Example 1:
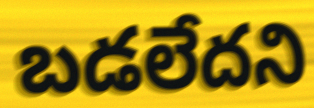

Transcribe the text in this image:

బడలేదని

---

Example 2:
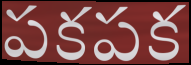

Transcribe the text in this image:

పకపక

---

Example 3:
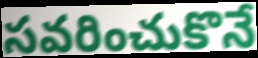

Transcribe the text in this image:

సవరించుకొనే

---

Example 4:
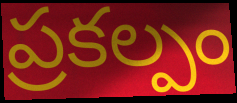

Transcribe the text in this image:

ప్రకల్పం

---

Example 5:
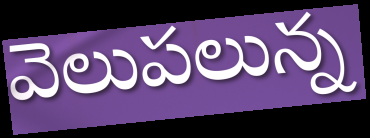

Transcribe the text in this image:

వెలుపలున్న